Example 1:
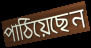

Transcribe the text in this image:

পাঠিয়েছেন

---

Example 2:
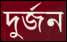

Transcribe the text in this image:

দুর্জন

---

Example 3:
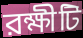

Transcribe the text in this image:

রক্ষীটি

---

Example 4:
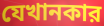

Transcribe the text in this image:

যেখানকার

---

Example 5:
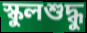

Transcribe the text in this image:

স্কুলশুদ্ধু